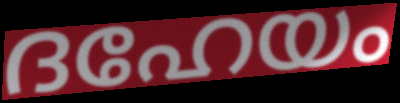
ദഹേയം